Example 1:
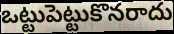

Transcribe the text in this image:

ఒట్టుపెట్టుకొనరాదు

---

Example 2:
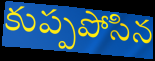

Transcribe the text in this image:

కుప్పపోసిన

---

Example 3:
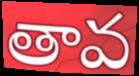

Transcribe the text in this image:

తావ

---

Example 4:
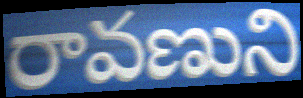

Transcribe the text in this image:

రావణుని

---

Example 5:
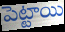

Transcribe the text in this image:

పెట్టాయి